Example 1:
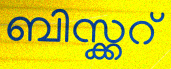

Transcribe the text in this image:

ബിസ്ക്കറ്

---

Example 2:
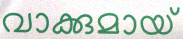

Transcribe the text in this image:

വാക്കുമായ്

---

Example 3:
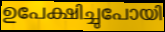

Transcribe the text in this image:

ഉപേക്ഷിച്ചുപോയി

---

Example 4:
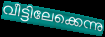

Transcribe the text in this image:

വീട്ടിലേക്കെന്നു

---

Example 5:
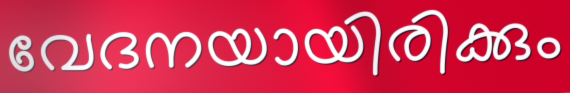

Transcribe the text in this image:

വേദനയായിരിക്കും